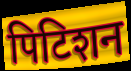
पिटिशन